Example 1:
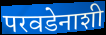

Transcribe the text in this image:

परवडेनाशी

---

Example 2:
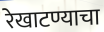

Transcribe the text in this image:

रेखाटण्याचा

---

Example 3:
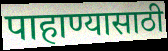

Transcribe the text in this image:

पाहाण्यासाठी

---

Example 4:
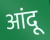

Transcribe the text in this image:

आंदू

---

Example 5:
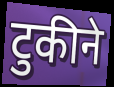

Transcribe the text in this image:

टुकीने